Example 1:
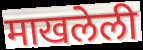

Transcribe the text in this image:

माखलेली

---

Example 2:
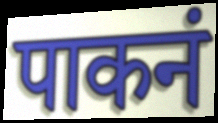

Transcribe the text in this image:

पाकनं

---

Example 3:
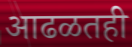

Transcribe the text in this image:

आढळतही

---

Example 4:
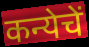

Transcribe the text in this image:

कन्येचें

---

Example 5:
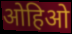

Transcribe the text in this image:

ओहिओ